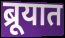
ब्रूयात